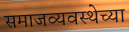
समाजव्यवस्थेच्या